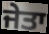
ਜੇਤਾ